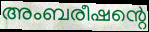
അംബരീഷന്റെ